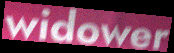
widower